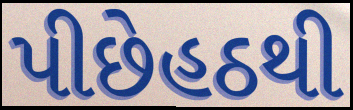
પીછેહઠથી